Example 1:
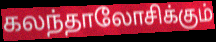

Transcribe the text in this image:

கலந்தாலோசிக்கும்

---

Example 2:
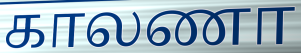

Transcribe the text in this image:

காலணா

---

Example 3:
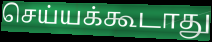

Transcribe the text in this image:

செய்யக்கூடாது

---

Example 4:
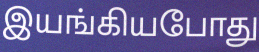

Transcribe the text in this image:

இயங்கியபோது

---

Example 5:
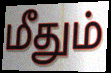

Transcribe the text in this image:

மீதும்